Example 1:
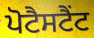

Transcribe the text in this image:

ਪੋਟੈਸਟੈਂਟ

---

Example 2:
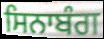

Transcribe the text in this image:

ਸਿਨਾਬੰਗ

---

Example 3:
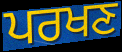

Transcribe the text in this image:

ਪਰਖਣ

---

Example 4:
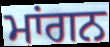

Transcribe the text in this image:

ਮਾਂਗਨ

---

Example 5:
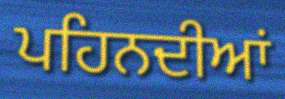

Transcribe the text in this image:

ਪਹਿਨਦੀਆਂ